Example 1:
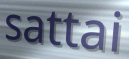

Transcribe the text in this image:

sattai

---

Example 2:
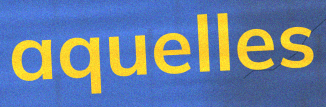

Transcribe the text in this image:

aquelles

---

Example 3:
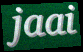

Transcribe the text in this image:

jaai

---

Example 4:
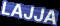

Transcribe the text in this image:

LAJJA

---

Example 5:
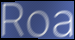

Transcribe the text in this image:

Roa